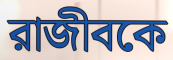
রাজীবকে